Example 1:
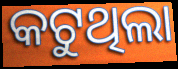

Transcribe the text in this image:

କଟୁଥିଲା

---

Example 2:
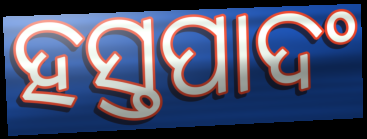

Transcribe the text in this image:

ହସ୍ତପାଦଂ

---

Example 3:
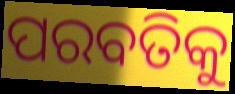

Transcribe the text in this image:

ପରବତିକୁ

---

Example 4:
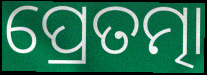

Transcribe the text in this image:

ପ୍ରେତତ୍ମା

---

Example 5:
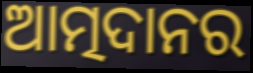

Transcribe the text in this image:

ଆତ୍ମଦାନର